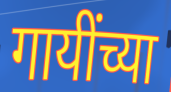
गायींच्या